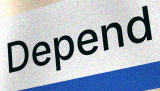
Depend